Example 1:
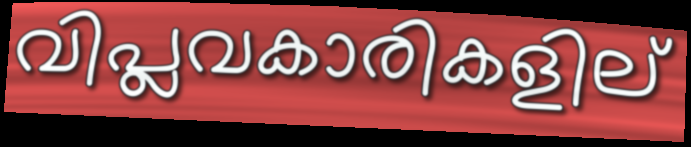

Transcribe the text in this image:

വിപ്ലവകാരികളില്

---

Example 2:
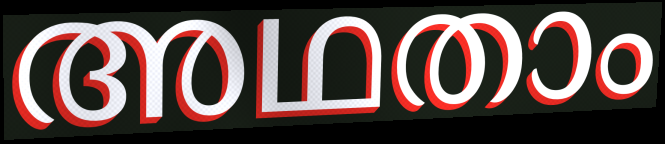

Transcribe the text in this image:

അഥതാം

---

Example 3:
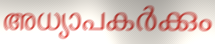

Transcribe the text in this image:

അധ്യാപകർക്കും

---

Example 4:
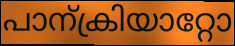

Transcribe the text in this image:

പാന്ക്രിയാറ്റോ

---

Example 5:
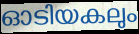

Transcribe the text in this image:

ഓടിയകലും